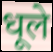
धूले